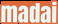
madai